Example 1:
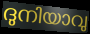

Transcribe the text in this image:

ദുനിയാവു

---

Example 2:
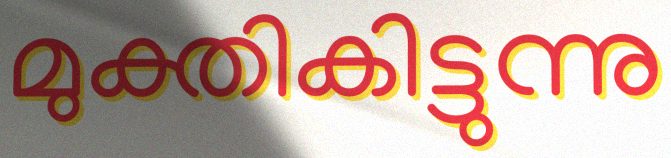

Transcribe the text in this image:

മുക്തികിട്ടുന്നു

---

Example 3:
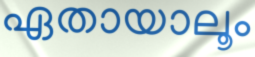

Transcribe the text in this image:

ഏതായാലൂം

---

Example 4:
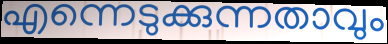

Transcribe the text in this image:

എന്നെടുക്കുന്നതാവും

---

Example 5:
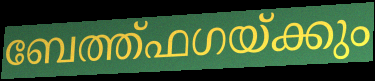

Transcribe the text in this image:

ബേത്ത്ഫഗയ്ക്കും